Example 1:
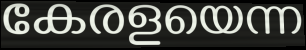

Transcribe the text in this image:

കേരളയെന്ന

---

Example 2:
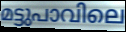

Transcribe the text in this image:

മട്ടുപാവിലെ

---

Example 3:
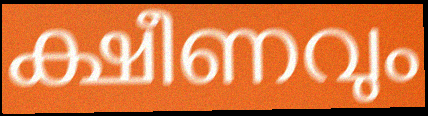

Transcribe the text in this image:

ക്ഷീണവും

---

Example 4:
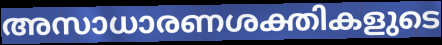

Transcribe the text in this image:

അസാധാരണശക്തികളുടെ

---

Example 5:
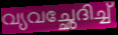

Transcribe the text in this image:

വ്യവച്ഛേദിച്ച്